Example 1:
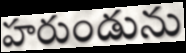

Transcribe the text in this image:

హరుండును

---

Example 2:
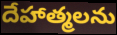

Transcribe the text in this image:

దేహాత్మలను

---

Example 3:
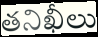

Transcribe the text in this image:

తనిఖీలు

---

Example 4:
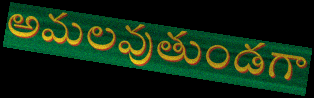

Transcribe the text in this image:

అమలవుతుండగా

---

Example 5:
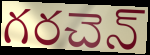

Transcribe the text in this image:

గరచెన్